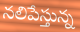
నలిపేస్తున్న